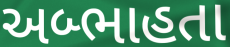
અબ્ભાહતા